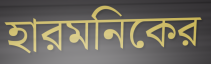
হারমনিকের